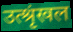
उत्श्रृंखल